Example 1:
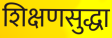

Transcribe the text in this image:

शिक्षणसुद्धा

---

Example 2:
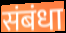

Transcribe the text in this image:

संबंधा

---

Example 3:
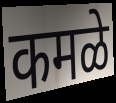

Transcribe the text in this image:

कमळे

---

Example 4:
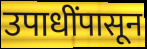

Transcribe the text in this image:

उपाधींपासून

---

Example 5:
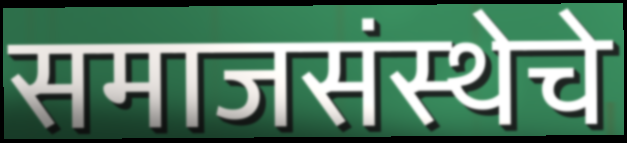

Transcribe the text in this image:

समाजसंस्थेचे